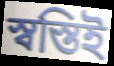
স্বস্তিই